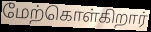
மேற்கொள்கிறார்